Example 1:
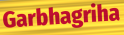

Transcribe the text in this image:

Garbhagriha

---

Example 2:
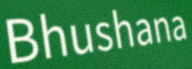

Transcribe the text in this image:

Bhushana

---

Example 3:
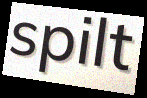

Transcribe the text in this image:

spilt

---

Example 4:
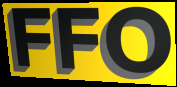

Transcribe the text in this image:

FFO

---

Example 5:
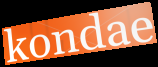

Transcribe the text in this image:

kondae